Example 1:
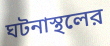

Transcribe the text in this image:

ঘটনাস্থলের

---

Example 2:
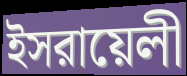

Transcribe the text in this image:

ইসরায়েলী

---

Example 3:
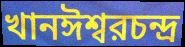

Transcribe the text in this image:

খানঈশ্বরচন্দ্র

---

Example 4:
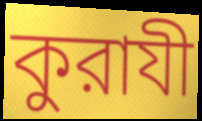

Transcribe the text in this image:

কুরাযী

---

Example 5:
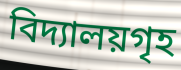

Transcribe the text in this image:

বিদ্যালয়গৃহ